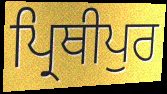
ਪ੍ਰਿਥੀਪੁਰ